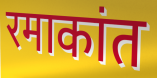
रमाकांत